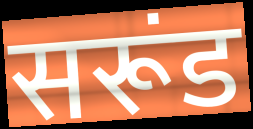
सरूंड